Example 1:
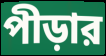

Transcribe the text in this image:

পীড়ার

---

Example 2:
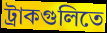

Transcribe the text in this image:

ট্রাকগুলিতে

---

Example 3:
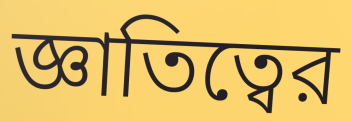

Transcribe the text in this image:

জ্ঞাতিত্বের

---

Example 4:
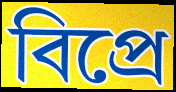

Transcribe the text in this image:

বিপ্রে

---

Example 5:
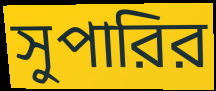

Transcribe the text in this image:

সুপারির